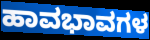
ಹಾವಭಾವಗಳ